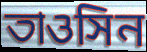
তাওসিন